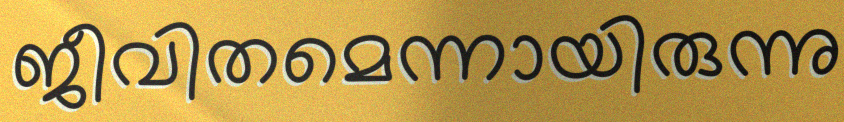
ജീവിതമെന്നായിരുന്നു